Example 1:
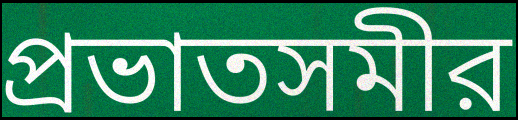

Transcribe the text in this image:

প্রভাতসমীর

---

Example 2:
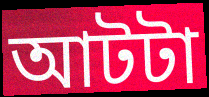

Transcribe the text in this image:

আটটা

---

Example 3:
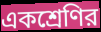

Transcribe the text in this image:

একশ্রেণির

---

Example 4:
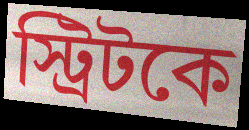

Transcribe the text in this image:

স্ট্রিটকে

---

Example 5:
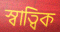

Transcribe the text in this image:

স্বাত্বিক